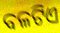
ବଳଟିଏ